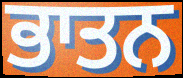
ਭਾਤਨ